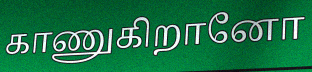
காணுகிறானோ